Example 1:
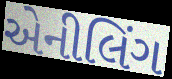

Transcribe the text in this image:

એનીલિંગ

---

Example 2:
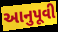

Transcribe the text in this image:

આનુપૂવી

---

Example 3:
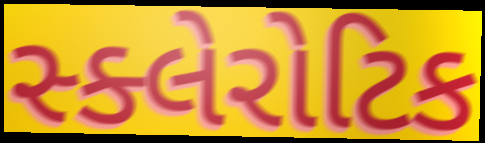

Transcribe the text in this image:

સ્ક્લેરોટિક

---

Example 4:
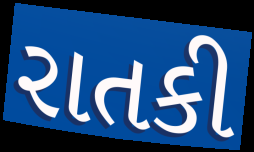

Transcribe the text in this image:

રાતકી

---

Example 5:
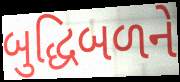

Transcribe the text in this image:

બુદ્ધિબળને